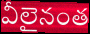
వీలైనంత